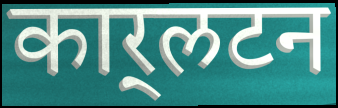
कार्लटन